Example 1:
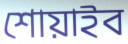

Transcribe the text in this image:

শোয়াইব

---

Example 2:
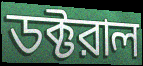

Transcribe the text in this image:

ডক্টরাল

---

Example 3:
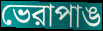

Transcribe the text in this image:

ভেরাপাঙ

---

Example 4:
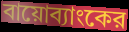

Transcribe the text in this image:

বায়োব্যাংকের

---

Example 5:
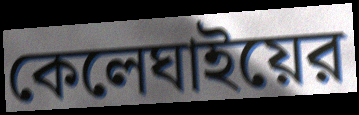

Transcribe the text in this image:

কেলেঘাইয়ের